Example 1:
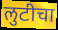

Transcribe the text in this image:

लुटीचा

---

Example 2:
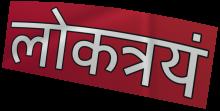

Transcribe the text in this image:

लोकत्रयं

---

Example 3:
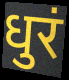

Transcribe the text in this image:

धुरं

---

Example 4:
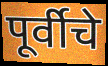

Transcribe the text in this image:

पूर्वीचे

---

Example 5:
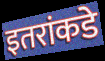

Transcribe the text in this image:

इतरांकडे